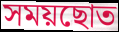
সময়ছোত